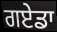
ਗਏਡਾ